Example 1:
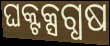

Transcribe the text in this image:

ଘକ୍ଟକ୍ସଗ୍ଧଷ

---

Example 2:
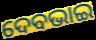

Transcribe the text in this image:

ଦେବଭାଇ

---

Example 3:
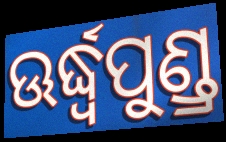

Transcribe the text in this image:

ଊର୍ଦ୍ଧ୍ୱପୁଣ୍ଡ୍ର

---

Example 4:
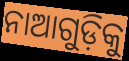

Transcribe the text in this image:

ନାଆଗୁଡ଼ିକୁ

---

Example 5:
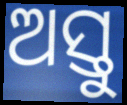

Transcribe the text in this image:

ଅସ୍ତୁ